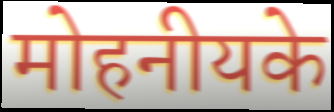
मोहनीयके